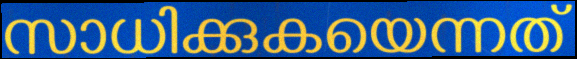
സാധിക്കുകയെന്നത്